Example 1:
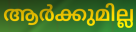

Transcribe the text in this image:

ആർക്കുമില്ല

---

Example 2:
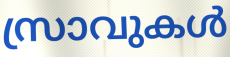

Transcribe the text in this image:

സ്രാവുകൾ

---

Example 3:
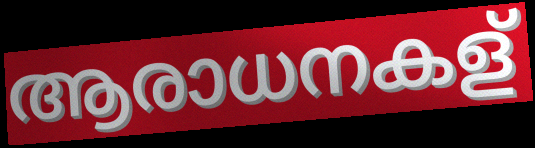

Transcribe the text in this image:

ആരാധനകള്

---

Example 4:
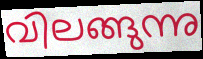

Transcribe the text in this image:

വിലങ്ങുന്നു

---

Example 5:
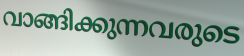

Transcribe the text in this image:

വാങ്ങിക്കുന്നവരുടെ